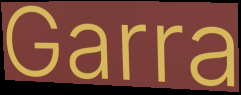
Garra